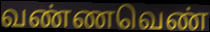
வண்ணவெண்